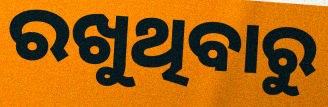
ରଖୁଥିବାରୁ